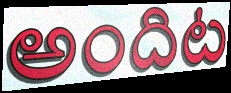
అందిట